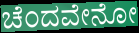
ಚೆಂದವೇನೋ